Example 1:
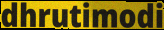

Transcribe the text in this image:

dhrutimodi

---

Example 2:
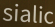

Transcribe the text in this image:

sialic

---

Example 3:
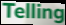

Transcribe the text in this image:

Telling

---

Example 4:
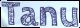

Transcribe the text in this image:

Tanu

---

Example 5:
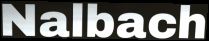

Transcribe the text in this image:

Nalbach